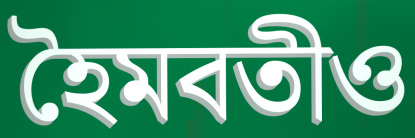
হৈমবতীও